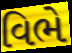
વિભે